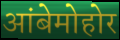
आंबेमोहोर